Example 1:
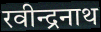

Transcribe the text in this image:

रवीन्‍द्रनाथ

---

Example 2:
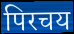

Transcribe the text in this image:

पिरचय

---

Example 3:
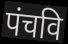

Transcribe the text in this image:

पंचवि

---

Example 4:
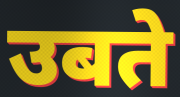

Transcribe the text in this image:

उबते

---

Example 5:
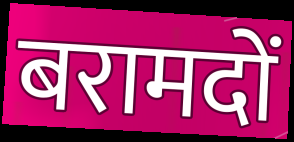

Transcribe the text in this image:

बरामदों